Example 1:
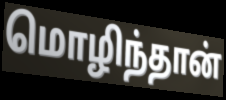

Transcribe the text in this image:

மொழிந்தான்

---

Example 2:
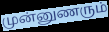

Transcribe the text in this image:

முன்னுணரும்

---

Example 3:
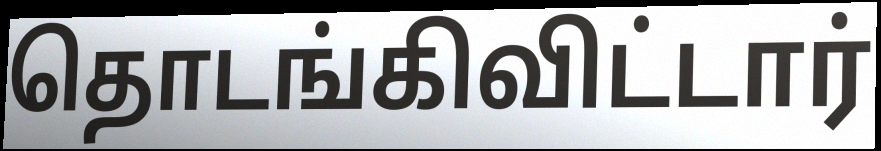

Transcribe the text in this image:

தொடங்கிவிட்டார்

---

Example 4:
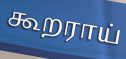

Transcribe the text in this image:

கூறராய்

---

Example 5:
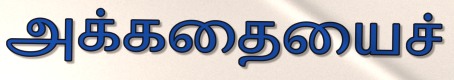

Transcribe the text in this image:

அக்கதையைச்